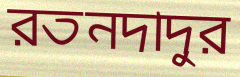
রতনদাদুর